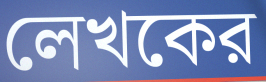
লেখকের